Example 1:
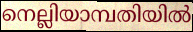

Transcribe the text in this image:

നെല്ലിയാമ്പതിയിൽ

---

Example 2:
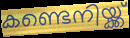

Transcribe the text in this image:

കണ്ടെനിയ്ക്ക്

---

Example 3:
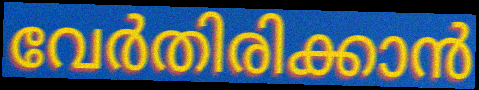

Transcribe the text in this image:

വേർതിരിക്കാൻ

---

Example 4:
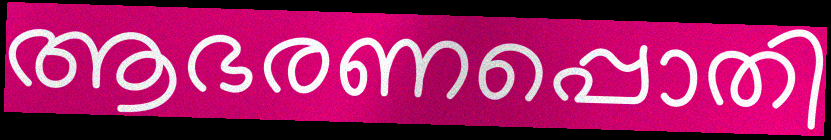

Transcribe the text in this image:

ആഭരണപ്പൊതി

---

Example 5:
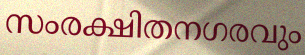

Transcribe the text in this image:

സംരക്ഷിതനഗരവും